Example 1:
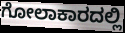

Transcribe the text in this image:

ಗೋಲಾಕಾರದಲ್ಲಿ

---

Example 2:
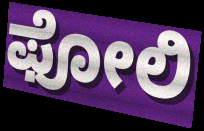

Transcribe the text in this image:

ಫೋಲಿ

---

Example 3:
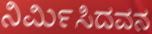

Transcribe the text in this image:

ನಿರ್ಮಿಸಿದವನ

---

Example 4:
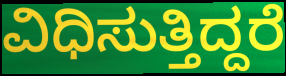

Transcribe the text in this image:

ವಿಧಿಸುತ್ತಿದ್ದರೆ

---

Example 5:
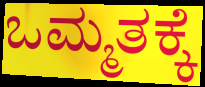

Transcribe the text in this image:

ಒಮ್ಮತಕ್ಕೆ